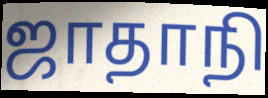
ஜாதாநி